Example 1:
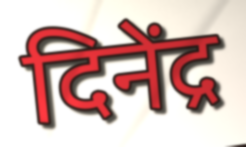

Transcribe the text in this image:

दिनेंद्र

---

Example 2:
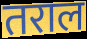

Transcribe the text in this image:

तराल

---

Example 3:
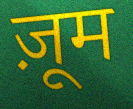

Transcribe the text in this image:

ज़ूम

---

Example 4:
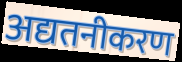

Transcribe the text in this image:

अद्यतनीकरण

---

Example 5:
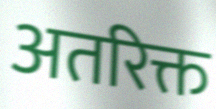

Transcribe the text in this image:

अतरिक्त